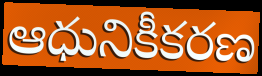
ఆధునికీకరణ